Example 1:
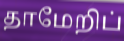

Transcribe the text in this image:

தாமேறிப்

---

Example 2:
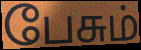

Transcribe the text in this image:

பேசும்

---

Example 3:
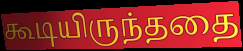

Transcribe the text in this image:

கூடியிருந்ததை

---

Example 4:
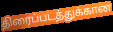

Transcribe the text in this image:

திரைப்படத்துக்கான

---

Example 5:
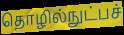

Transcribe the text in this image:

தொழில்நுட்பச்